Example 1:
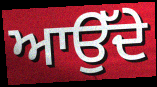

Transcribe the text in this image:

ਆਉੱਦੇ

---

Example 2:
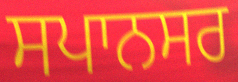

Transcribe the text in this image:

ਸਪਾਨਸਰ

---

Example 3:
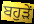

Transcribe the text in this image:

ਬਹੁੜੇਂ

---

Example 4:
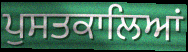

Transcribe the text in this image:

ਪੁਸਤਕਾਲਿਆਂ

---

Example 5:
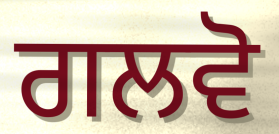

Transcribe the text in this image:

ਗਲਵੋ